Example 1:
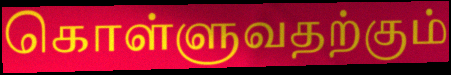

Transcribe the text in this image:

கொள்ளுவதற்கும்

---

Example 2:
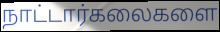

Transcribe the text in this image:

நாட்டார்கலைகளை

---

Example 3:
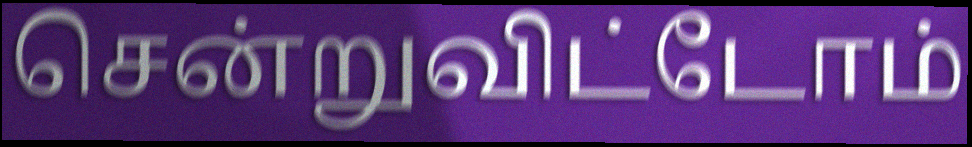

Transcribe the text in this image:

சென்றுவிட்டோம்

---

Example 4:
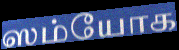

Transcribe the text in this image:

ஸம்யோக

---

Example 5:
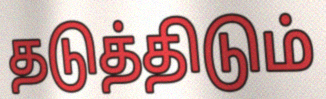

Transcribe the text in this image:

தடுத்திடும்